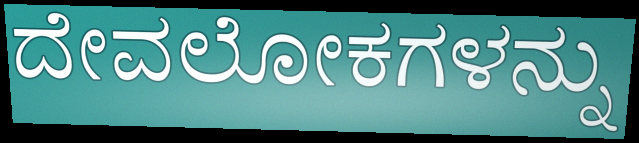
ದೇವಲೋಕಗಳನ್ನು